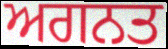
ਅਗਨਤ